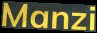
Manzi